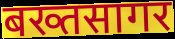
बख्तसागर